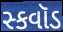
સ્કવૉડ